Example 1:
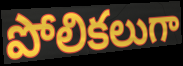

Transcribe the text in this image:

పోలికలుగా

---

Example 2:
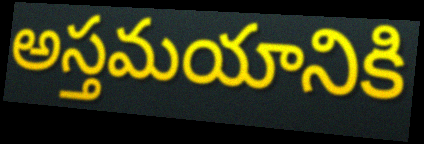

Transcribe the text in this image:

అస్తమయానికి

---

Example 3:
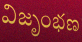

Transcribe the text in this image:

విజృంభణ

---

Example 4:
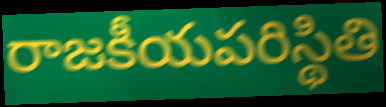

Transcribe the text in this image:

రాజకీయపరిస్థితి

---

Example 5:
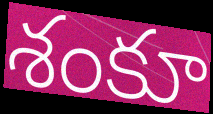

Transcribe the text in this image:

శంకూ